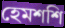
হেমশশি